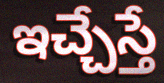
ఇచ్చేస్తే